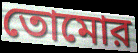
তোমোর